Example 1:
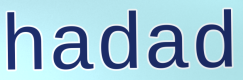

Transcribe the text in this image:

hadad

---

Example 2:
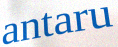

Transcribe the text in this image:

antaru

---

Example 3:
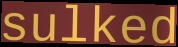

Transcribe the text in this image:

sulked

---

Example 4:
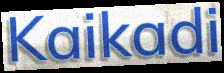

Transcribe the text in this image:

Kaikadi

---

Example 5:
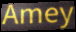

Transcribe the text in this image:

Amey